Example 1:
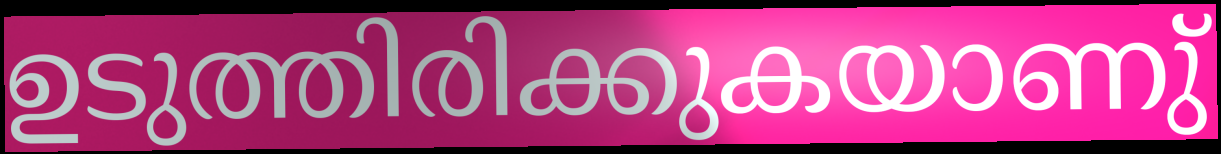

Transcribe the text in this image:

ഉടുത്തിരിക്കുകയാണു്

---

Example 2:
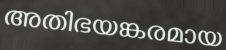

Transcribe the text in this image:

അതിഭയങ്കരമായ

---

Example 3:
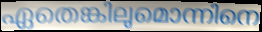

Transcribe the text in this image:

ഏതെങ്കിലുമൊന്നിനെ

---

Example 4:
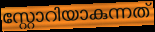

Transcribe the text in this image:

സ്റ്റോറിയാകുന്നത്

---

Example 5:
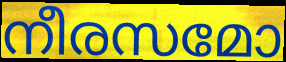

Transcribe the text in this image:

നീരസമോ